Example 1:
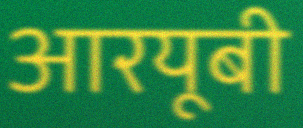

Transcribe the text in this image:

आरयूबी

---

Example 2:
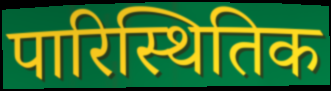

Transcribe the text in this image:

पारिस्थितिक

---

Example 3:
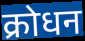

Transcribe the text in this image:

क्रोधन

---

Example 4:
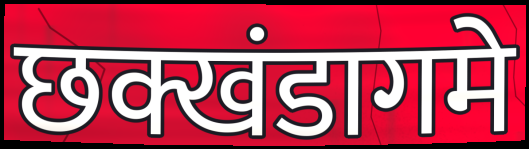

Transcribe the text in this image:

छक्खंडागमे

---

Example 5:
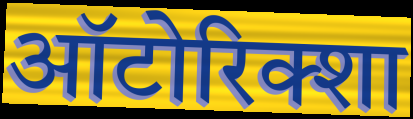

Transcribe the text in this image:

ऑटोरिक्‍शा